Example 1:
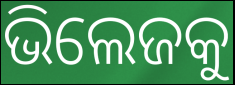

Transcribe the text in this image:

ଭିଲେଜକୁ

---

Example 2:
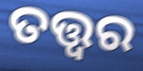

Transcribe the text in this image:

ତତ୍ତ୍ବର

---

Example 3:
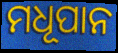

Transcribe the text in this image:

ମଧୂପାନ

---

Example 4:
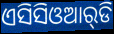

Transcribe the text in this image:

ଏସିସିଓଆର୍‌ଡି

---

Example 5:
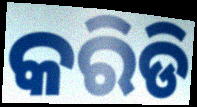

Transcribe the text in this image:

କରିଡି